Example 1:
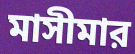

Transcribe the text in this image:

মাসীমার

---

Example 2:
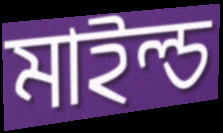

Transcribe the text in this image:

মাইল্ড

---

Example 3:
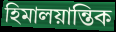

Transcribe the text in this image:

হিমালয়ান্তিক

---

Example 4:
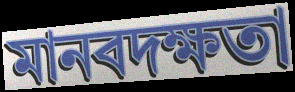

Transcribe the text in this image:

মানবদক্ষতা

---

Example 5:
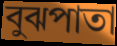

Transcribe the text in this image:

বুঝপাতা